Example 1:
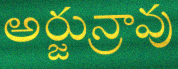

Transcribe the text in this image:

అర్జున్రావు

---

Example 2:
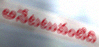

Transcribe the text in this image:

అనేటటువంటిది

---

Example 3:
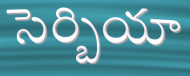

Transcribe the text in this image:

సెర్బియా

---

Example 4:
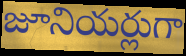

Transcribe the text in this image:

జూనియర్లుగా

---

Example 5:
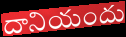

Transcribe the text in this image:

దానియందు